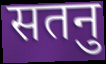
सतनु